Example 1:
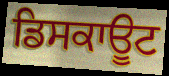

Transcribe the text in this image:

ਡਿਸਕਾਊਟ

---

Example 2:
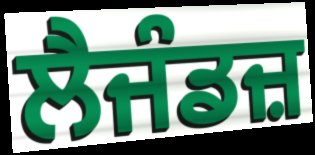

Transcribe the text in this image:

ਲੈਜੰਡਜ਼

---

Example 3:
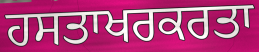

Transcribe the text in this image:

ਹਸਤਾਖਰਕਰਤਾ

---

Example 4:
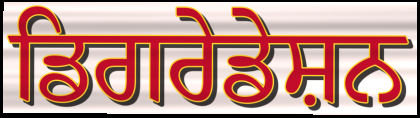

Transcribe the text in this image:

ਡਿਗਰੇਡੇਸ਼ਨ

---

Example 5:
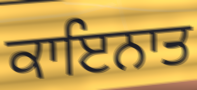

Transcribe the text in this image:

ਕਾਇਨਾਤ